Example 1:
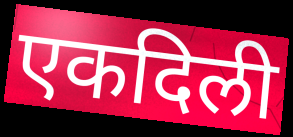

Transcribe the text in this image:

एकदिली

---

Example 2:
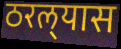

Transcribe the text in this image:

ठरल्यास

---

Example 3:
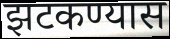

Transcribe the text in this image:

झटकण्यास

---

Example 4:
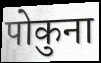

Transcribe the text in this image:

पोकुना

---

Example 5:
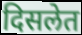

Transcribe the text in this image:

दिसलेत